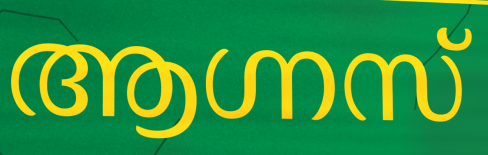
ആഗ്നസ്